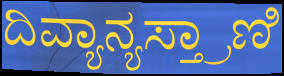
ದಿವ್ಯಾನ್ಯಸ್ತ್ರಾಣಿ